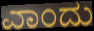
ಎಾಂದು